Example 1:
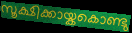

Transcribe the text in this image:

സൂക്ഷിക്കായ്കകൊണ്ടു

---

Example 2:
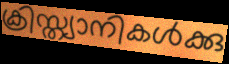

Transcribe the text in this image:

ക്രിസ്ത്യാനികൾക്കു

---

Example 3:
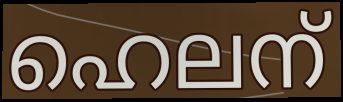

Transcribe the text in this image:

ഹെലന്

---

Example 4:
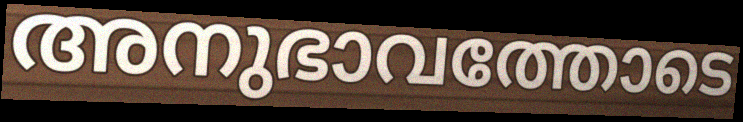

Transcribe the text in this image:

അനുഭാവത്തോടെ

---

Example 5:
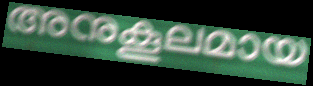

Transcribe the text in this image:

അനുകൂലമായ